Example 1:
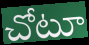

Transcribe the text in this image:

చోటూ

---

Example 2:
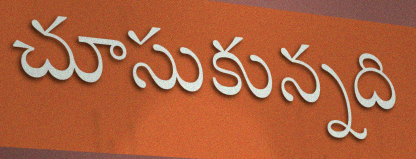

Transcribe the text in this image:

చూసుకున్నది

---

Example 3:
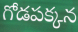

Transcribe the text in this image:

గోడపక్కన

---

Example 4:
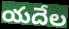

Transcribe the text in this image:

యదేల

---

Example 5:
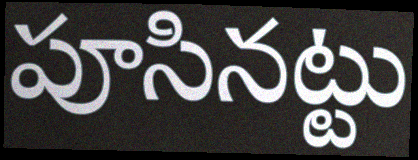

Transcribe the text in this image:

పూసినట్టు